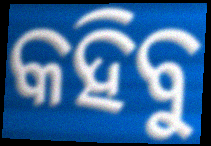
କହିବୁ